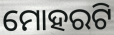
ମୋହରଟି